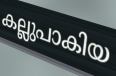
കല്ലുപാകിയ